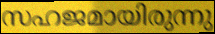
സഹജമായിരുന്നു